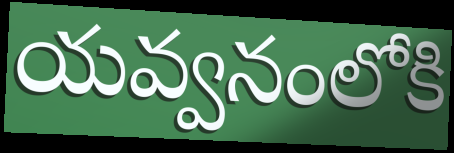
యవ్వనంలోకి